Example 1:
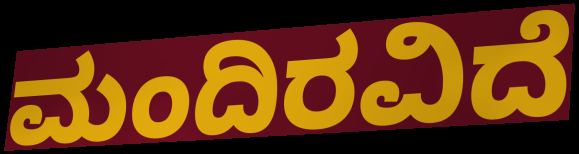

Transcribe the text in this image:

ಮಂದಿರವಿದೆ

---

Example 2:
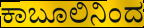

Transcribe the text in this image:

ಕಾಬೂಲಿನಿಂದ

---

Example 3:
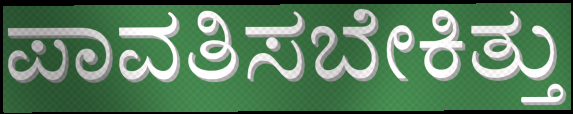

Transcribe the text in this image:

ಪಾವತಿಸಬೇಕಿತ್ತು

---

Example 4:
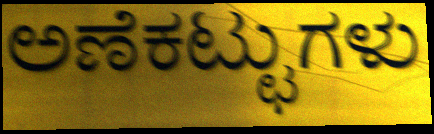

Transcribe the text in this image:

ಅಣೆಕಟ್ಟುಗಳು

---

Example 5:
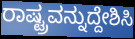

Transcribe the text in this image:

ರಾಷ್ಟ್ರವನ್ನುದ್ದೇಶಿಸಿ